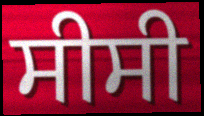
ਸੀਸੀ